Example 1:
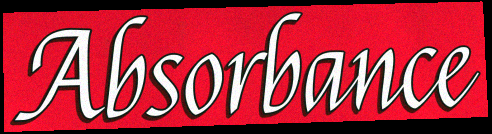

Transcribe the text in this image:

Absorbance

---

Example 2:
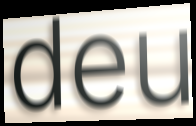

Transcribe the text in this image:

deu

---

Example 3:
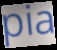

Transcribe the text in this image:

pia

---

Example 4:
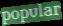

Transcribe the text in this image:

popular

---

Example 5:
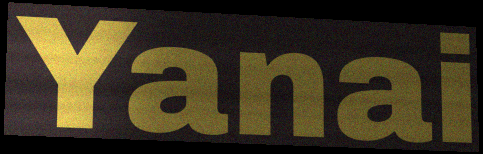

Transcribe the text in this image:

Yanai